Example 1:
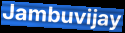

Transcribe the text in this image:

Jambuvijay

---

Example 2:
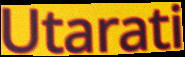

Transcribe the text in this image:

Utarati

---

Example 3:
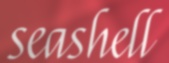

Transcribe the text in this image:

seashell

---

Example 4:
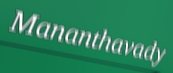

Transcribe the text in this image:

Mananthavady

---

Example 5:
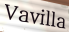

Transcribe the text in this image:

Vavilla